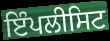
ਇੰਪਲੀਸਿਟ